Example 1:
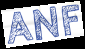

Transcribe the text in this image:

ANF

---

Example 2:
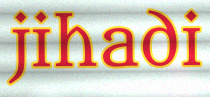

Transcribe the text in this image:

jihadi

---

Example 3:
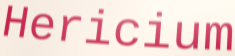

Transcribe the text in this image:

Hericium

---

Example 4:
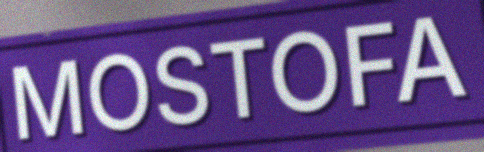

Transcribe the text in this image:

MOSTOFA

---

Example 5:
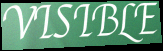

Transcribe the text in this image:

VISIBLE